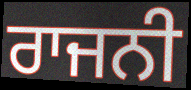
ਰਾਜਨੀ